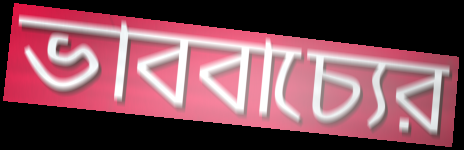
ভাববাচ্যের